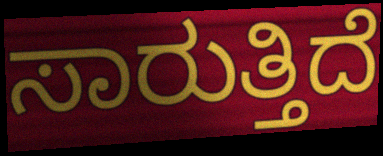
ಸಾರುತ್ತಿದೆ